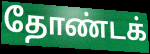
தோண்டக்